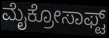
ಮೈಕ್ರೋಸಾಫ್ಟ್